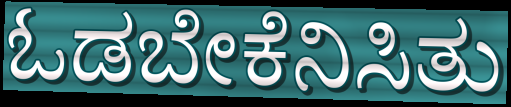
ಓಡಬೇಕೆನಿಸಿತು